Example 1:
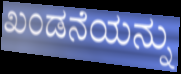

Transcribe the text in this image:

ಖಂಡನೆಯನ್ನು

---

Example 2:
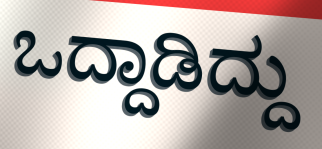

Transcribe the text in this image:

ಒದ್ದಾಡಿದ್ದು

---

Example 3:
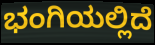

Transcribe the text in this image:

ಭಂಗಿಯಲ್ಲಿದೆ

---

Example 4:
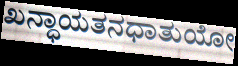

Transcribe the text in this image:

ಖನ್ಧಾಯತನಧಾತುಯೋ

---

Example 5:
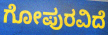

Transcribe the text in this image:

ಗೋಪುರವಿದೆ